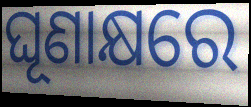
ଘୂଣାକ୍ଷରେ